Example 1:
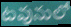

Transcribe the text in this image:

టవునులో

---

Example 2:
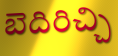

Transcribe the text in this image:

బెదిరిచ్చి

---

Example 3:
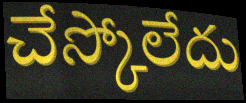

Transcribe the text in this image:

చేస్కోలేదు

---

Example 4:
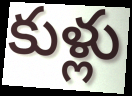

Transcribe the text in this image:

కుళ్లు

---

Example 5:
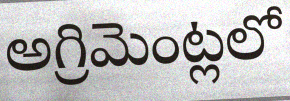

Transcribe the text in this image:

అగ్రిమెంట్లలో